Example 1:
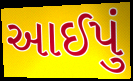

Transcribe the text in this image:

આઈપું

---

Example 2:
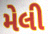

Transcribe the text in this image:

મેલી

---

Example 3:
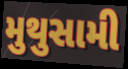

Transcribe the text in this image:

મુથુસામી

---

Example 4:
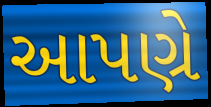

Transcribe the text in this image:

આપણ્રે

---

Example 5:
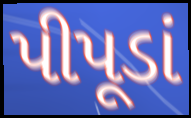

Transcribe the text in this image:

પીપૂડાં